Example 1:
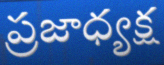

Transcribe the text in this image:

ప్రజాధ్యక్ష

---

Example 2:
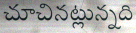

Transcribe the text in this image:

చూచినట్లున్నది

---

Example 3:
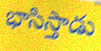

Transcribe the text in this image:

భాసిస్తాడు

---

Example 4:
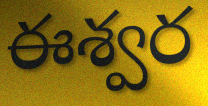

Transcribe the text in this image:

ఈశ్వర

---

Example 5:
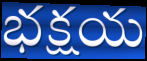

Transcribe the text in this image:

భక్షయ